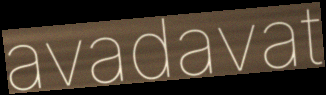
avadavat